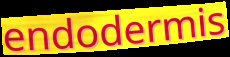
endodermis